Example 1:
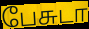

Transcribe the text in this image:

பேசுடா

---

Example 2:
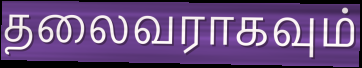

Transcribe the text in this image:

தலைவராகவும்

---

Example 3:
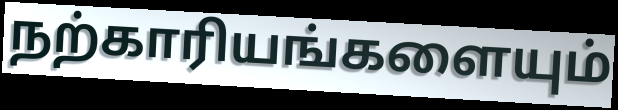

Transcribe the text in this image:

நற்காரியங்களையும்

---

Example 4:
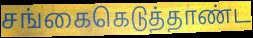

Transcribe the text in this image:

சங்கைகெடுத்தாண்ட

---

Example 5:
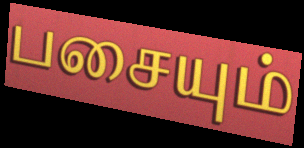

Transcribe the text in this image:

பசையும்